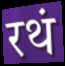
रथं